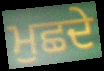
ਮੁਛਦੇ